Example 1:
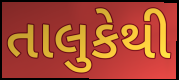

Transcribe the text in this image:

તાલુકેથી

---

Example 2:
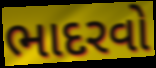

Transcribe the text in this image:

ભાદરવો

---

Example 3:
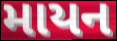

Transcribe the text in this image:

માયન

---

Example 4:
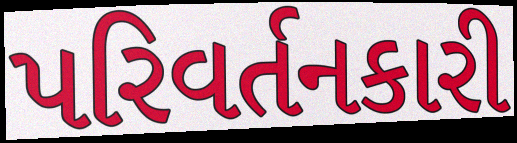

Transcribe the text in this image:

પરિવર્તનકારી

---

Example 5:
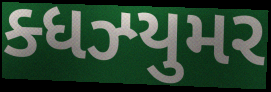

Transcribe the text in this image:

ક્ધઝ્યુમર